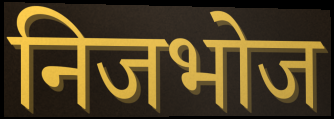
निजभोज